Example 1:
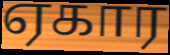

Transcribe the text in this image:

ஏகார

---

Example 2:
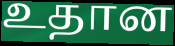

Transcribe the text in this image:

உதான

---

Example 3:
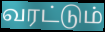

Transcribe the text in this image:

வரட்டும்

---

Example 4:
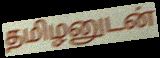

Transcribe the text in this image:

தமிழனுடன்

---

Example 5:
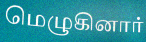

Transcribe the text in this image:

மெழுகினார்